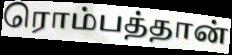
ரொம்பத்தான்